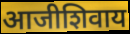
आजीशिवाय